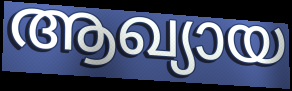
ആഖ്യായ